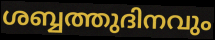
ശബ്ബത്തുദിനവും